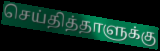
செய்தித்தாளுக்கு